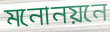
মনোনয়নে